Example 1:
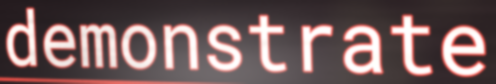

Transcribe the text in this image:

demonstrate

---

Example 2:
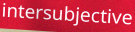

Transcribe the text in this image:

intersubjective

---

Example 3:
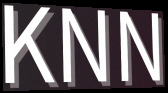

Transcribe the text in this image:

KNN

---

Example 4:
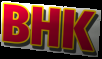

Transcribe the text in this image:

BHK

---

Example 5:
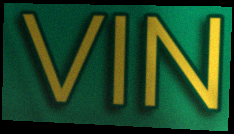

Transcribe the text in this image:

VIN